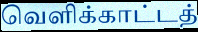
வெளிக்காட்டத்